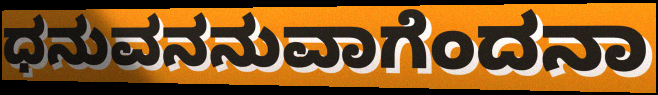
ಧನುವನನುವಾಗೆಂದನಾ